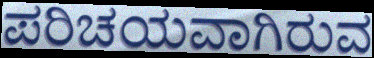
ಪರಿಚಯವಾಗಿರುವ